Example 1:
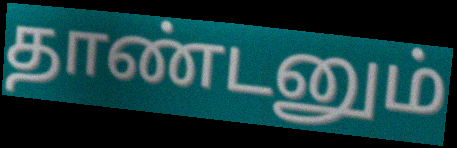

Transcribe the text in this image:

தாண்டனும்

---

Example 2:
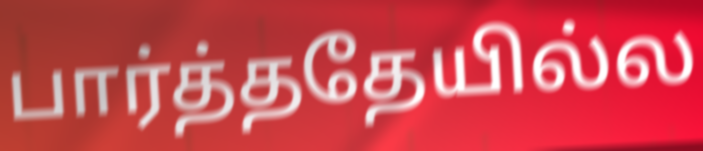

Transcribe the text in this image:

பார்த்ததேயில்ல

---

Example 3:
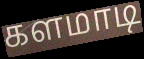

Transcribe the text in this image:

களமாடி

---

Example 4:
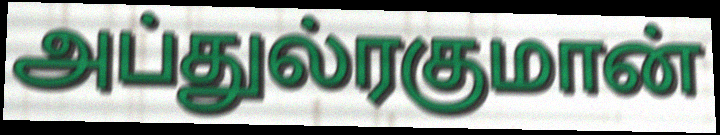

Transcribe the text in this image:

அப்துல்ரகுமான்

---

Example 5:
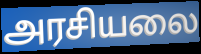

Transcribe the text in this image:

அரசியலை